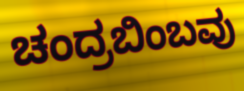
ಚಂದ್ರಬಿಂಬವು